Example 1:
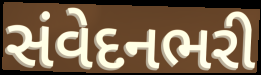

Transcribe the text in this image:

સંવેદનભરી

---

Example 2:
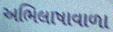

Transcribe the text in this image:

અભિલાષાવાળા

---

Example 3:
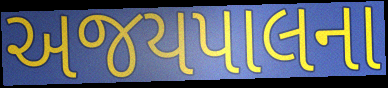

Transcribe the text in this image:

અજયપાલના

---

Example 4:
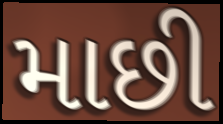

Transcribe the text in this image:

માછી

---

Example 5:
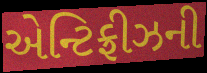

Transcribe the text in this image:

એન્ટિફ્રીઝની